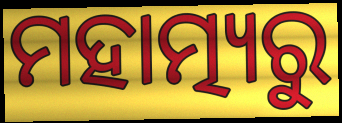
ମହାତ୍ମ୍ୟରୁ